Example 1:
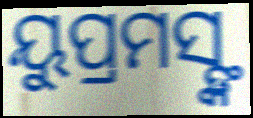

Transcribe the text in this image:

ୟୁପ୍ରମସ୍ଙ୍କ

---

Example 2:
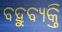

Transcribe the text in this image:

ବହୁବ୍ୟକ୍ତି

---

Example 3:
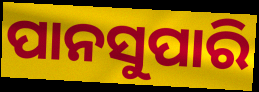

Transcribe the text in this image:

ପାନସୁପାରି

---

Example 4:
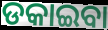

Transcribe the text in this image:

ଡକାଇବା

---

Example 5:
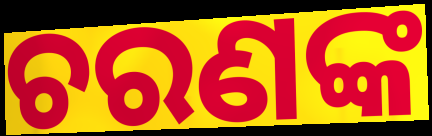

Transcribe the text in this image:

ଚରଣଙ୍କ